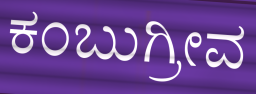
ಕಂಬುಗ್ರೀವ